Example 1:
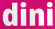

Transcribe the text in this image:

dini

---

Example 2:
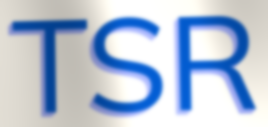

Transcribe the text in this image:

TSR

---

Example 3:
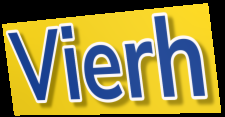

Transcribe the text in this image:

Vierh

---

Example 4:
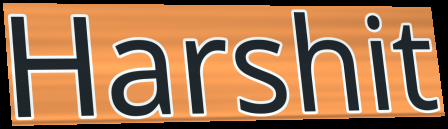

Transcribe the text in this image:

Harshit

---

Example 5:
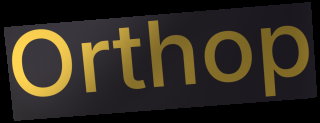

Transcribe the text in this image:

Orthop